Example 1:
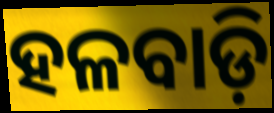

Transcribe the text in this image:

ହଳବାଡ଼ି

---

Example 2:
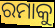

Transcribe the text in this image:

ରମାକୁ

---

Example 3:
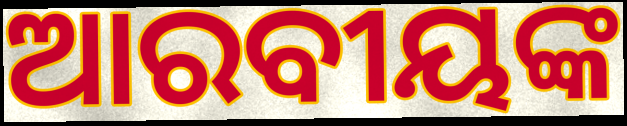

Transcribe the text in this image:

ଆରବୀୟଙ୍କ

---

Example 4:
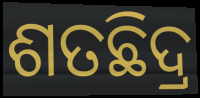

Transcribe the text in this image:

ଶତଛିଦ୍ର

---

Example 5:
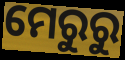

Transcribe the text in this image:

ମେରୁରୁ